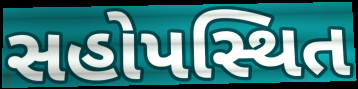
સહોપસ્થિત